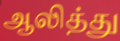
ஆலித்து